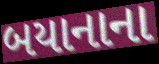
બયાનાના